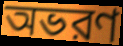
অভরণ